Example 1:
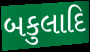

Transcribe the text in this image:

બકુલાદિ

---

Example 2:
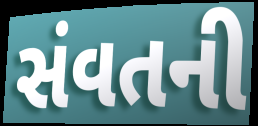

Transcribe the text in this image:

સંવતની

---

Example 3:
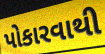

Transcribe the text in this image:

પોકારવાથી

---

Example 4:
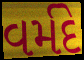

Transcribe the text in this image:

વર્મદે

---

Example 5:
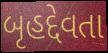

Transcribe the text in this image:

બૃહદ્દેવતા